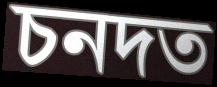
চনদত